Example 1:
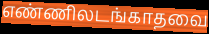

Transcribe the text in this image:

எண்ணிலடங்காதவை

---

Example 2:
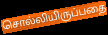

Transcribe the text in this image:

சொல்லியிருப்பதை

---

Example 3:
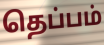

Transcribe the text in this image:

தெப்பம்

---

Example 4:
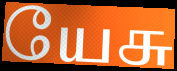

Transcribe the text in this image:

யேசு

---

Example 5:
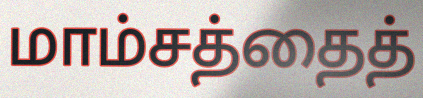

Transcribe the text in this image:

மாம்சத்தைத்